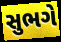
સુભગે